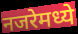
नजरेमध्ये